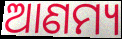
ଆଣମ୍ୟ